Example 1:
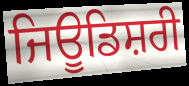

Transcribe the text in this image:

ਜਿਊਡਿਸ਼ਰੀ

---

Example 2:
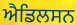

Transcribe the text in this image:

ਐਡਿਲਸਨ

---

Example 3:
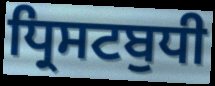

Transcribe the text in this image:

ਧ੍ਰਿਸਟਬੁਧੀ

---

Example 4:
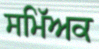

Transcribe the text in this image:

ਸਮਿੱਅਕ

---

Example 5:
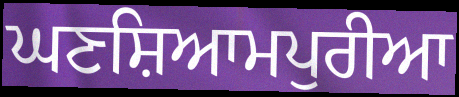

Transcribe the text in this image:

ਘਣਸ਼ਿਆਮਪੁਰੀਆ